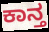
ಕಾನ್ತ